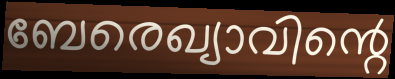
ബേരെഖ്യാവിന്റെ